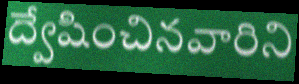
ద్వేషించినవారిని